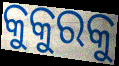
କୁକୁରକୁ